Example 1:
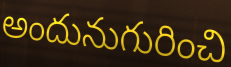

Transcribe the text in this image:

అందునుగురించి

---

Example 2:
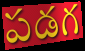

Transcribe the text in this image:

పడగ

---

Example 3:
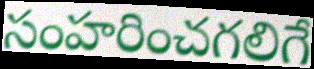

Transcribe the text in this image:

సంహరించగలిగే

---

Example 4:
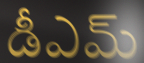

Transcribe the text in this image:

డీఎమ్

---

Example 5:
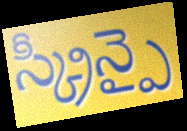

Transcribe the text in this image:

స్క్రీన్పై